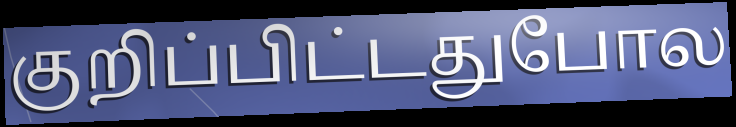
குறிப்பிட்டதுபோல